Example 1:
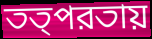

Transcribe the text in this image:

তত্পরতায়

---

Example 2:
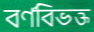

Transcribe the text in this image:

বর্ণবিভক্ত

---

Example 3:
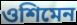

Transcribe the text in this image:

ওশিমেন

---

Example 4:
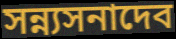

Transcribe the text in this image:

সন্ন্যসনাদেব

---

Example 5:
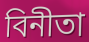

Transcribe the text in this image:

বিনীতা